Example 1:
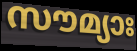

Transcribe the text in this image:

സൗമ്യാഃ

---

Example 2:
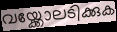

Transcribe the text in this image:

വയ്ക്കോലടിക്കുക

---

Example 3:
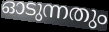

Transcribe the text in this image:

ഓടുന്നതും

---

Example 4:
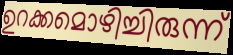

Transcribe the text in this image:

ഉറക്കമൊഴിച്ചിരുന്ന്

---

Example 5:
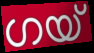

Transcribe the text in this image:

ഗയ്